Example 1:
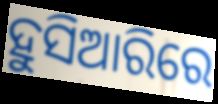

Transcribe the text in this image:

ହୁସିଆରିରେ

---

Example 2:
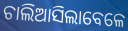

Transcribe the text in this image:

ଚାଲିଆସିଲାବେଳେ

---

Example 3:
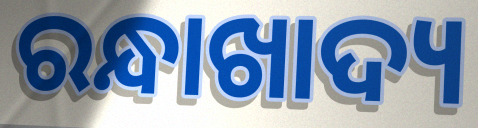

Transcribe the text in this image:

ରନ୍ଧାଖାଦ୍ୟ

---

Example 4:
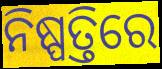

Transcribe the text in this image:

ନିଷ୍ପତ୍ତିରେ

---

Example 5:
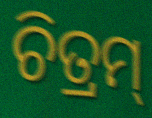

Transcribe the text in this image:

ଚିତ୍ରମ୍